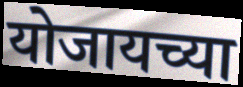
योजायच्या